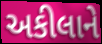
અકીલાને